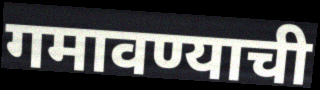
गमावण्याची